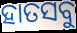
ହାତସବୁ